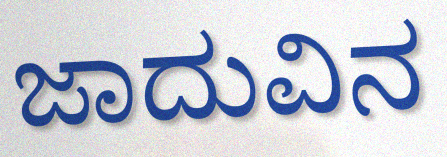
ಜಾದುವಿನ